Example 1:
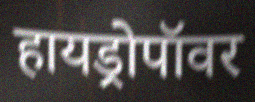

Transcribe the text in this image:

हायड्रोपॉवर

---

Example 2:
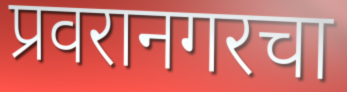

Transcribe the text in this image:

प्रवरानगरचा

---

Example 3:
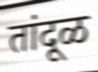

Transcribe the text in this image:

तांदूळ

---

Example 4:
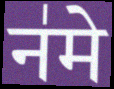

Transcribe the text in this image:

न॑मे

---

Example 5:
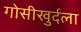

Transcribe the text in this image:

गोसीखुर्दला